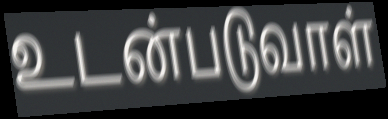
உடன்படுவாள்